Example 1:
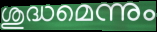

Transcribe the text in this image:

ശുദ്ധമെന്നും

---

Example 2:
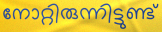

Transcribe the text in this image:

നോറ്റിരുന്നിട്ടുണ്ട്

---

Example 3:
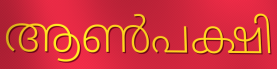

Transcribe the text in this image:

ആൺപക്ഷി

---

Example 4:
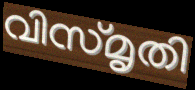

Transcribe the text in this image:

വിസ്മൃതി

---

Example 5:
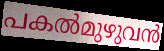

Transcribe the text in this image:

പകൽമുഴുവൻ